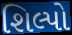
શિલ્પો